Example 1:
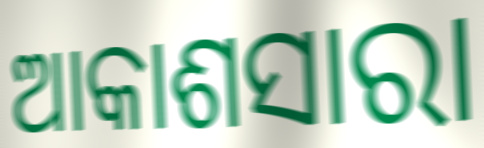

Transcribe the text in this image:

ଆକାଶସାରା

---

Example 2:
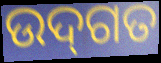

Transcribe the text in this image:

ଉଦ୍‌ଗତ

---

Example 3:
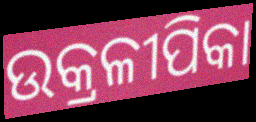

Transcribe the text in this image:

ଉକ୍ରଳୀପିକା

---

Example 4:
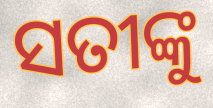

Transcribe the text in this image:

ସତୀଙ୍କୁ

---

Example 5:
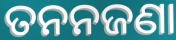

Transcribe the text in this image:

ତନନଜଣା